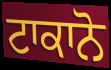
ਟਾਕਾਨੋ